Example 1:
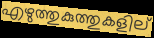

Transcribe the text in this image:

എഴുത്തുകുത്തുകളില്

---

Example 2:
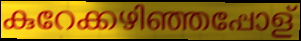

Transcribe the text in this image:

കുറേക്കഴിഞ്ഞപ്പോള്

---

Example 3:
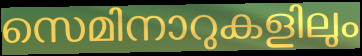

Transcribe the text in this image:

സെമിനാറുകളിലും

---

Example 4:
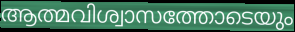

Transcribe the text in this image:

ആത്മവിശ്വാസത്തോടെയും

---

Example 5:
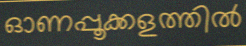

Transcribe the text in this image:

ഓണപ്പൂക്കളത്തിൽ